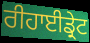
ਰੀਹਾਈਡ੍ਰੇਟ